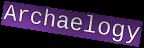
Archaelogy